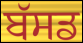
ਬੱਸਡ